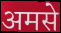
अमसे